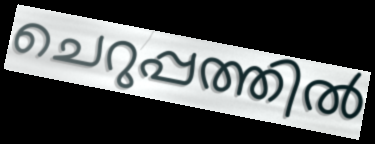
ചെറുപ്പത്തിൽ